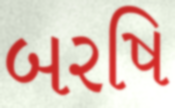
બરષિ